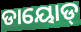
ଡାୟୋଡ୍